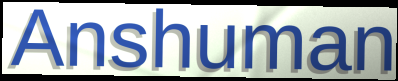
Anshuman